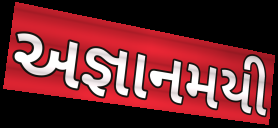
અજ્ઞાનમયી